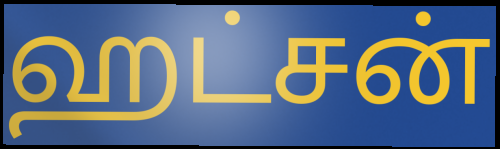
ஹட்சன்